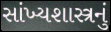
સાંખ્યશાસ્ત્રનું